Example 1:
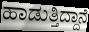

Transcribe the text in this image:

ಹಾಡುತ್ತಿದ್ದಾನೆ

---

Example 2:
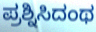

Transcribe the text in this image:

ಪ್ರಶ್ನಿಸಿದಂಥ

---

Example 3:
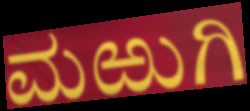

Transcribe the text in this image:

ಮಱುಗಿ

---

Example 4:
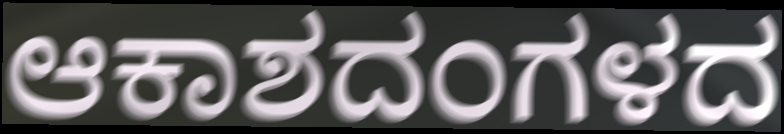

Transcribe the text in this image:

ಆಕಾಶದಂಗಳದ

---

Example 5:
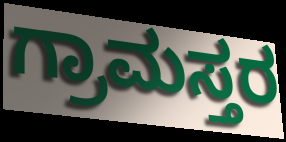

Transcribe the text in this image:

ಗ್ರಾಮಸ್ತರ